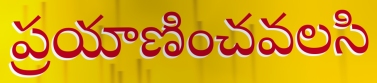
ప్రయాణించవలసి